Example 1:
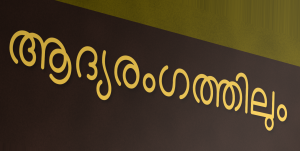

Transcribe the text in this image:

ആദ്യരംഗത്തിലും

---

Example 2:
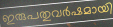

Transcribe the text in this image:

ഇരുപതുവർഷമായി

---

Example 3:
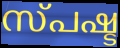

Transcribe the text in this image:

സ്‌പഷ്ട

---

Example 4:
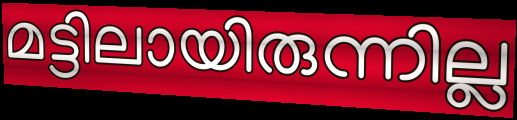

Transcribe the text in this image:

മട്ടിലായിരുന്നില്ല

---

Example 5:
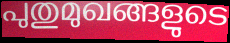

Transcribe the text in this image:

പുതുമുഖങ്ങളുടെ